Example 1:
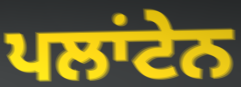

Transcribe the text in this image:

ਪਲਾਂਟੇਨ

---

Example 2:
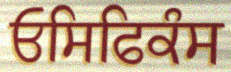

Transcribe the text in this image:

ਓਸਿਫਿਕੰਸ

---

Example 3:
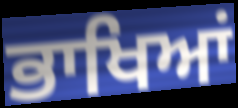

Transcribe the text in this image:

ਭਾਖਿਆਂ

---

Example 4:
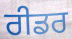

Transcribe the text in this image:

ਰੀਡਰ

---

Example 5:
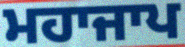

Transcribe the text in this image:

ਮਹਾਜਾਪ